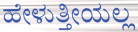
ಹೇಳುತ್ತೀಯಲ್ಲ